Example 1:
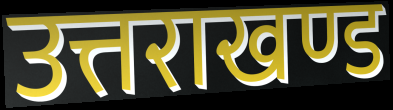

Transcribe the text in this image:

उत्तराखण्ड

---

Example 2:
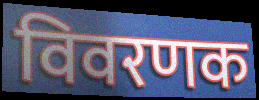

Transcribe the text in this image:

विवरणक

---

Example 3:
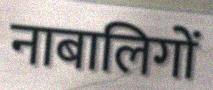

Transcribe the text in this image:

नाबालिगों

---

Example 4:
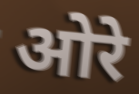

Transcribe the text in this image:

ओरे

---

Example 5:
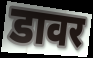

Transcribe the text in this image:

डावर